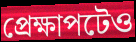
প্রেক্ষাপটেও